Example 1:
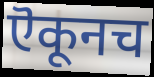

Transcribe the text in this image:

ऎकूनच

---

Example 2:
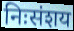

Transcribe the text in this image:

निःसंशय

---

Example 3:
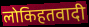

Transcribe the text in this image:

लोकिहतवादी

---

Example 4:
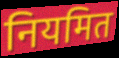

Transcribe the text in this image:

नियमित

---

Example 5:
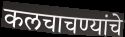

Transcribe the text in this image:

कलचाचण्यांचे